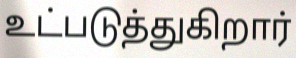
உட்படுத்துகிறார்